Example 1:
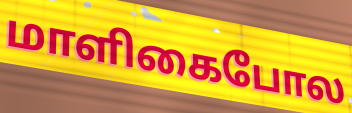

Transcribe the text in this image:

மாளிகைபோல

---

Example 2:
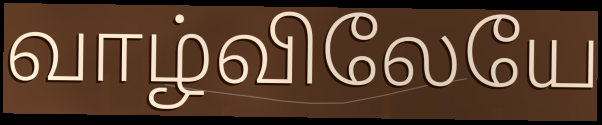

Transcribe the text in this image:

வாழ்விலேயே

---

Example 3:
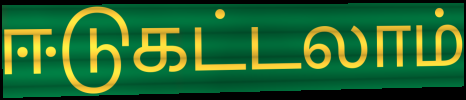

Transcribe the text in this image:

ஈடுகட்டலாம்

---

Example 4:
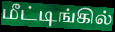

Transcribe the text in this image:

மீட்டிங்கில்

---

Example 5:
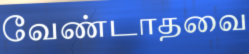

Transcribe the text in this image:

வேண்டாதவை